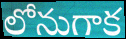
లోనుగాక